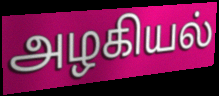
அழகியல்